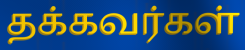
தக்கவர்கள்